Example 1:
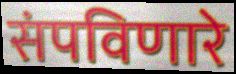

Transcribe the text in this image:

संपविणारे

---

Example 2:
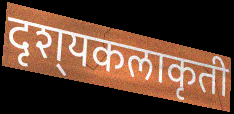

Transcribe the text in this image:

दृश्यकलाकृती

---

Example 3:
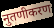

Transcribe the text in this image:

नुतणीकरण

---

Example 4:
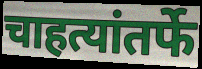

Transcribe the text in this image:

चाहत्यांतर्फे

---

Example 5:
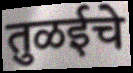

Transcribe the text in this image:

तुळईचे